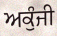
ਅਕੁੰਜੀ